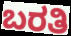
ಬರತಿ